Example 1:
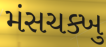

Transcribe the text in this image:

મંસચક્ખુ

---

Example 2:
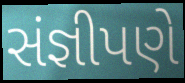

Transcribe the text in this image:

સંજ્ઞીપણે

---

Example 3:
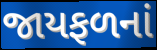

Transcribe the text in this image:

જાયફળનાં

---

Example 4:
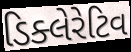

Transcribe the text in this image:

ડિક્લેરેટિવ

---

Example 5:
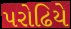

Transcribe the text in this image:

પરોઢિયે